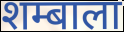
शम्बाला